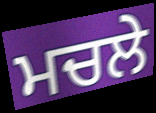
ਮਚਲੇ